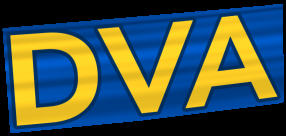
DVA